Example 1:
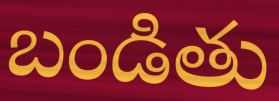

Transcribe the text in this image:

బండితు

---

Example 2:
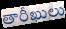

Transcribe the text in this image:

తారీఖులు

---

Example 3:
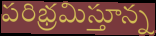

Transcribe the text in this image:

పరిభ్రమిస్తూన్న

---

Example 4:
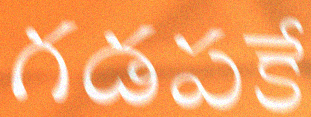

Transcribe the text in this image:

గడపకే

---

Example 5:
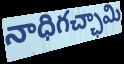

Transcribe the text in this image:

నాధిగచ్ఛామి